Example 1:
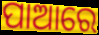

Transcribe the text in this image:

ପାଆରେ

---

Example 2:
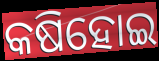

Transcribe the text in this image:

କଷିହୋଇ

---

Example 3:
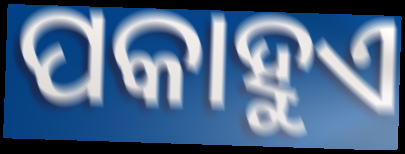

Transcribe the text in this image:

ପକାହୁଏ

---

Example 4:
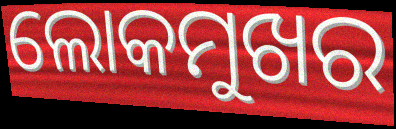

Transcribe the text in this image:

ଲୋକମୁଖର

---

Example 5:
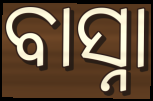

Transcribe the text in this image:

ବାସ୍ନା